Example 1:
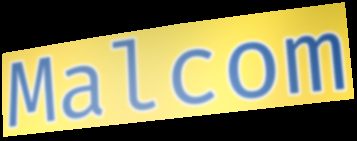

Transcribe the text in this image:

Malcom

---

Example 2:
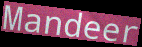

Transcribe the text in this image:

Mandeer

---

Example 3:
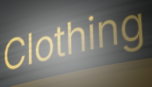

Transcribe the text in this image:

Clothing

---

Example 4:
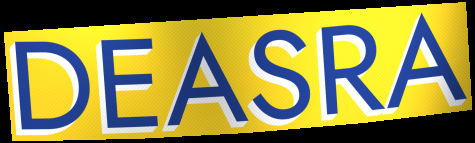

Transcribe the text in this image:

DEASRA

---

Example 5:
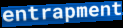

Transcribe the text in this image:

entrapment